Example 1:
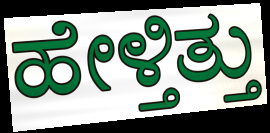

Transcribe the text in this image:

ಹೇಳ್ತಿತ್ತು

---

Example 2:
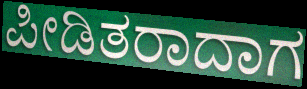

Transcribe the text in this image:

ಪೀಡಿತರಾದಾಗ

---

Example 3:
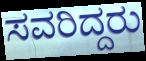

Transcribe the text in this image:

ಸವರಿದ್ದರು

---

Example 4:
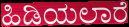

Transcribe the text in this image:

ಹಿಡಿಯಲಾರೆ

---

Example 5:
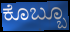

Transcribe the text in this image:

ಕೊಬ್ಬೂ